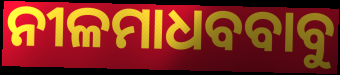
ନୀଳମାଧବବାବୁ